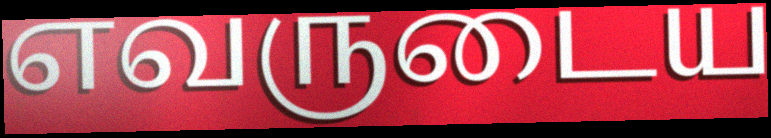
எவருடைய